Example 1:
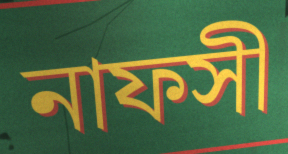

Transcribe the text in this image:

নাফসী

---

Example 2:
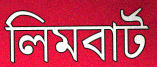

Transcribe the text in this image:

লিমবার্ট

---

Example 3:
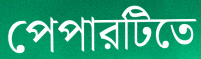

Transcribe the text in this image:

পেপারটিতে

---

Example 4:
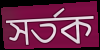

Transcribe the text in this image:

সর্তক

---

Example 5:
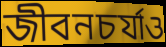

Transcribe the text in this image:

জীবনচর্যাও